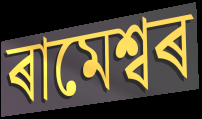
ৰামেশ্বৰ